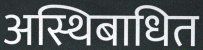
अस्थिबाधित